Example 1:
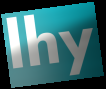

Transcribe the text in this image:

lhy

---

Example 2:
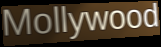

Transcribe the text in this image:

Mollywood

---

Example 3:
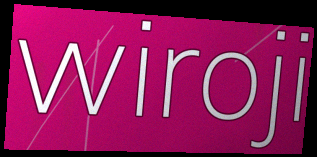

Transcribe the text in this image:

wiroji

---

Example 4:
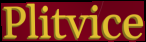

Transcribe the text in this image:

Plitvice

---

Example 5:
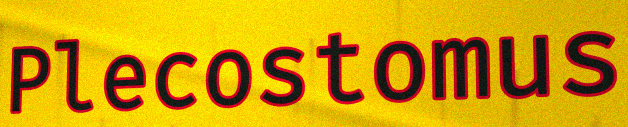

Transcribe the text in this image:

Plecostomus